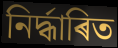
নিৰ্দ্ধাৰিত